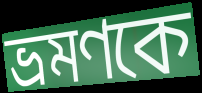
ভ্রমণকে